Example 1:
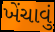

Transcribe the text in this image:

ખેંચાવું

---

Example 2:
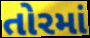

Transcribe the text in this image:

તોરમાં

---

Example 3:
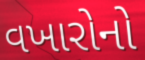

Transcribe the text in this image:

વખારોનો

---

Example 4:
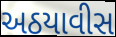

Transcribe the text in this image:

અઠયાવીસ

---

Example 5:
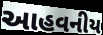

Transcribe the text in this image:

આહવનીય